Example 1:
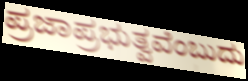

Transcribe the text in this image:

ಪ್ರಜಾಪ್ರಭುತ್ವವೆಂಬುದು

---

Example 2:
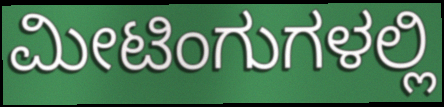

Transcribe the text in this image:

ಮೀಟಿಂಗುಗಳಲ್ಲಿ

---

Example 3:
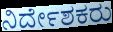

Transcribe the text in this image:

ನಿರ್ದೇಶಕರು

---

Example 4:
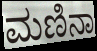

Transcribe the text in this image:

ಮಣಿನಾ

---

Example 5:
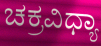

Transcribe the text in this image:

ಚಕ್ರವಿಧ್ಯಾ